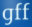
gff